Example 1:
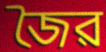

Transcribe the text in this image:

জৈৱ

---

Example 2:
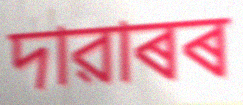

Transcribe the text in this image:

দাৱাৰৰ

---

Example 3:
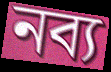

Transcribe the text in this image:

নব্য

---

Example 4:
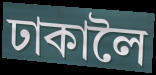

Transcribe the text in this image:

ঢাকালৈ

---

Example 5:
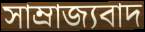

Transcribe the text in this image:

সাম্ৰাজ্যবাদ